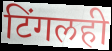
टिंगलही